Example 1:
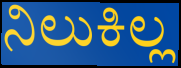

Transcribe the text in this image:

ನಿಲುಕಿಲ್ಲ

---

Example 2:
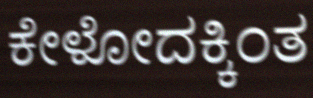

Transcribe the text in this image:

ಕೇಳೋದಕ್ಕಿಂತ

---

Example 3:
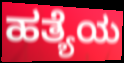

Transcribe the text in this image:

ಹತ್ಯೆಯ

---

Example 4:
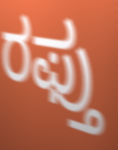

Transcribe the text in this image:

ರಫ್ತು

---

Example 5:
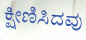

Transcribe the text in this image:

ಕ್ಷೀಣಿಸಿದವು